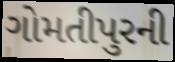
ગોમતીપુરની